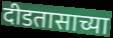
दीडतासाच्या